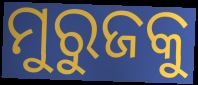
ମୁରୁଜକୁ